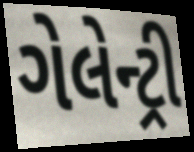
ગેલેન્ટ્રી